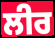
ਲੀਰ